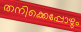
തനിക്കെപ്പോഴും